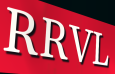
RRVL